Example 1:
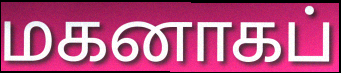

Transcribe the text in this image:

மகனாகப்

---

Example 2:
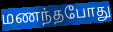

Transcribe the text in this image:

மணந்தபோது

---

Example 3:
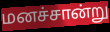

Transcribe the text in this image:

மனச்சான்று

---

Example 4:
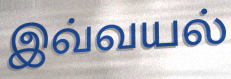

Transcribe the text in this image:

இவ்வயல்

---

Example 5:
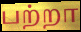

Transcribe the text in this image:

பற்றா